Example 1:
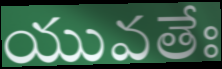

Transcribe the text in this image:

యువతేః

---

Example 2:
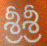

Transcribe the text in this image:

శ్రీశ్రీ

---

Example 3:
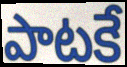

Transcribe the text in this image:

పాటకే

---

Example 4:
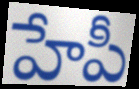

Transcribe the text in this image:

హేపీ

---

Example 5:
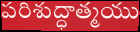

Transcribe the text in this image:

పరిశుద్ధాత్మయు